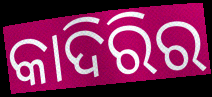
କାଦିରିର